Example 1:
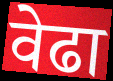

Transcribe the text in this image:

वेढा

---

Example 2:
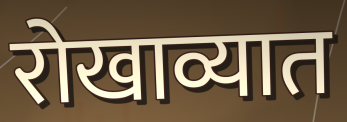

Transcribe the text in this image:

रोखाव्यात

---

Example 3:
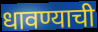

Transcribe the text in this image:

धावण्याची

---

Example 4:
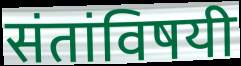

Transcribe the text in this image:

संतांविषयी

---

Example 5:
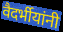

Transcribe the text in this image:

वैदर्भीयांनी